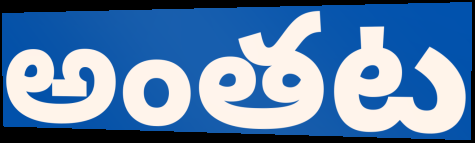
అంతట